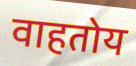
वाहतोय